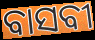
ବାସବୀ